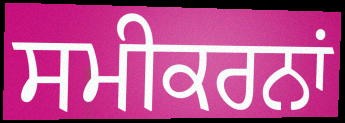
ਸਮੀਕਰਨਾਂ